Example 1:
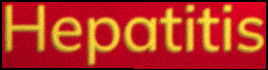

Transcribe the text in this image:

Hepatitis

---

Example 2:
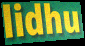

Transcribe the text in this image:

lidhu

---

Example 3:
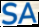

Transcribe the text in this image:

SA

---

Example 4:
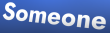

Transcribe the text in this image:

Someone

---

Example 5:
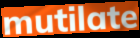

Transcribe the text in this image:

mutilate